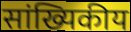
सांख्यिकीय